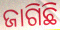
ଜାଗିଛି